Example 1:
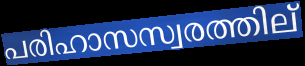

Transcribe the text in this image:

പരിഹാസസ്വരത്തില്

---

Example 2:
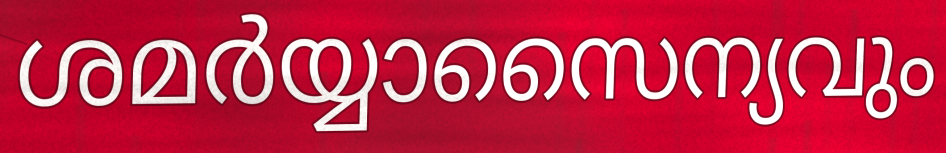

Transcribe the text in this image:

ശമർയ്യാസൈന്യവും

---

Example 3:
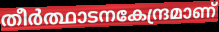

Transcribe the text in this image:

തീർത്ഥാടനകേന്ദ്രമാണ്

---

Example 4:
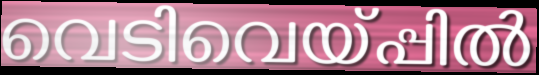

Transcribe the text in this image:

വെടിവെയ്പ്പിൽ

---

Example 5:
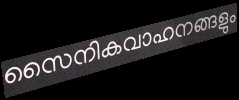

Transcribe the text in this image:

സൈനികവാഹനങ്ങളും